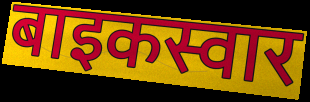
बाइकस्वार